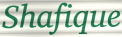
Shafique